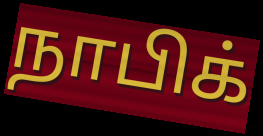
நாபிக்